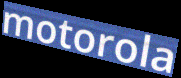
motorola